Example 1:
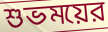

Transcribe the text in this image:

শুভময়ের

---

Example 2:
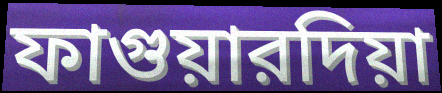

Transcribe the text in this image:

ফাগুয়ারদিয়া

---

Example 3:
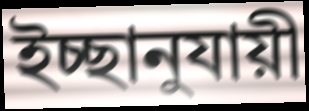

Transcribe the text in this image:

ইচ্ছানুযায়ী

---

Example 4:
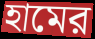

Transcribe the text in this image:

হামের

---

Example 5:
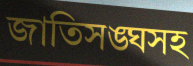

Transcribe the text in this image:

জাতিসঙ্ঘসহ